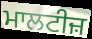
ਮਾਲਟੀਜ਼